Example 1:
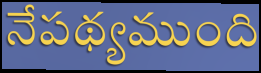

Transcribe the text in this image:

నేపథ్యముంది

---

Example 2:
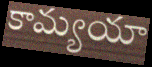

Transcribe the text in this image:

కామ్యయా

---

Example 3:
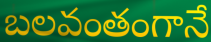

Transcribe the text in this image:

బలవంతంగానే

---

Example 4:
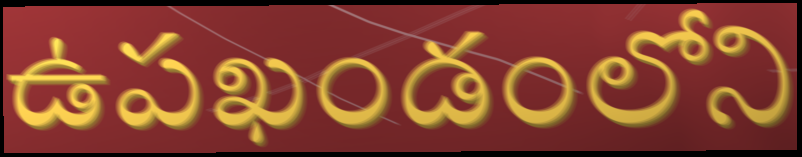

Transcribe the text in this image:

ఉపఖండంలోని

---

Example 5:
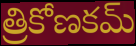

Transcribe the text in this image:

త్రికోణకమ్